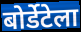
बोर्डेटेला